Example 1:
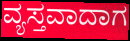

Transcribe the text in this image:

ವ್ಯಸ್ತವಾದಾಗ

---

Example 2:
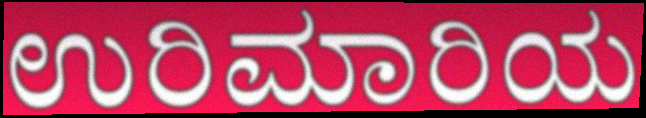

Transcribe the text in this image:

ಉರಿಮಾರಿಯ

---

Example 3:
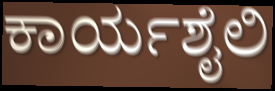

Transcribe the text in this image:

ಕಾರ್ಯಶೈಲಿ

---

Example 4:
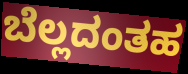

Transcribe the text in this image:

ಬೆಲ್ಲದಂತಹ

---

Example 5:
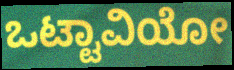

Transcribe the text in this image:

ಒಟ್ಟಾವಿಯೋ